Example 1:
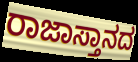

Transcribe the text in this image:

ರಾಜಾಸ್ತಾನದ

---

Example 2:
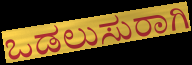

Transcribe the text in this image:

ಒಡಲುಸುರಾಗಿ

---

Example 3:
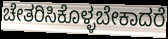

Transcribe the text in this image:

ಚೇತರಿಸಿಕೊಳ್ಳಬೇಕಾದರೆ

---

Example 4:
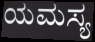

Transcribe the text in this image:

ಯಮಸ್ಯ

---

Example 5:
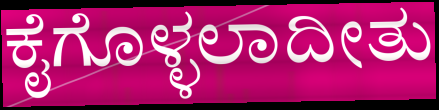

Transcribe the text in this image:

ಕೈಗೊಳ್ಳಲಾದೀತು